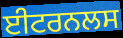
ਈਟਰਨਲਸ